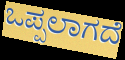
ಒಪ್ಪಲಾಗದೆ